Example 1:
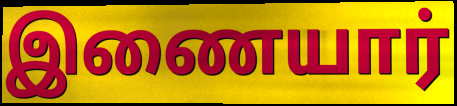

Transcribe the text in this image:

இணையார்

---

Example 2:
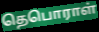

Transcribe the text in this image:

தெபொராள்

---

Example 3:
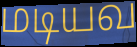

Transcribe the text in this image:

மடியவ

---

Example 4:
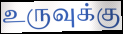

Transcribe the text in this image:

உருவுக்கு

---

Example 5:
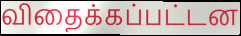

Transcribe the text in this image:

விதைக்கப்பட்டன